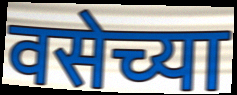
वसेच्या